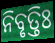
ନିବୃତ୍ତିଃ